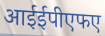
आईईपीएफए